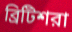
ব্রিটিশরা